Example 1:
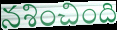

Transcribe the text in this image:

నశించింది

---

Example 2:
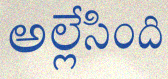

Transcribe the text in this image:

అల్లేసింది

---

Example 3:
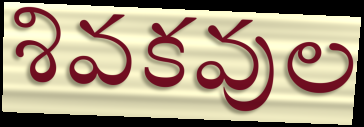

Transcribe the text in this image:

శివకవుల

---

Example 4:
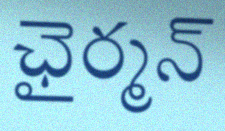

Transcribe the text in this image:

ఛైర్మన్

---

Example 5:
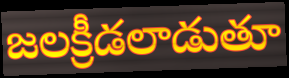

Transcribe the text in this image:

జలక్రీడలాడుతూ